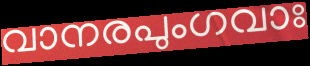
വാനരപുംഗവാഃ